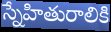
స్నేహితురాలికి